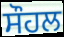
ਸੌਹਲ